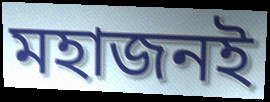
মহাজনই